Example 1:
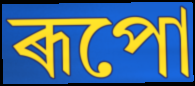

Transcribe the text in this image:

ৰূপো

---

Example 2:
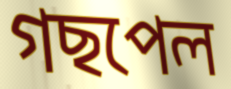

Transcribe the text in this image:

গছপেল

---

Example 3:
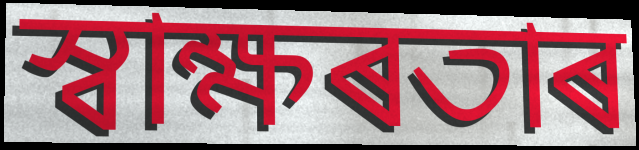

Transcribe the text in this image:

স্বাক্ষৰতাৰ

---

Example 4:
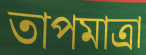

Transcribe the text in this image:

তাপমাত্ৰা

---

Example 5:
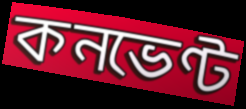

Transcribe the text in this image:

কনভেণ্ট